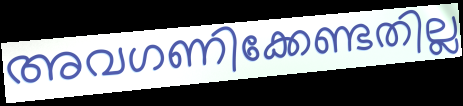
അവഗണിക്കേണ്ടതില്ല